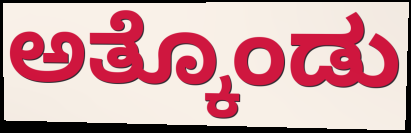
ಅತ್ಕೊಂಡು